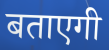
बताएगी